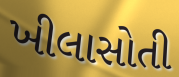
ખીલાસોતી